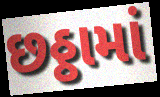
છઠ્ઠામાં